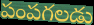
పంపగలడు